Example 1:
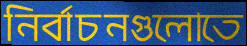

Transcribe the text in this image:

নির্বাচনগুলোতে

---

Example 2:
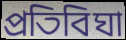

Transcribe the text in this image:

প্রতিবিঘা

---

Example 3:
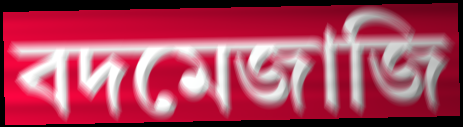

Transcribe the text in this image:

বদমেজাজি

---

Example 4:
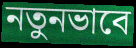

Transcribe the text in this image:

নতুনভাবে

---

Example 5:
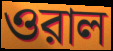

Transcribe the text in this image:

ওরাল